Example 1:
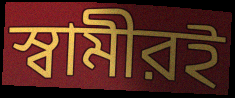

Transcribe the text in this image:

স্বামীরই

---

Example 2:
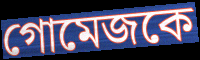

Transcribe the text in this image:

গোমেজকে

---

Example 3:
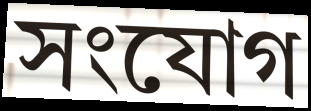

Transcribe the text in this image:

সংযোগ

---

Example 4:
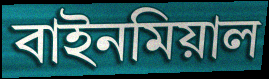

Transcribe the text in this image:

বাইনমিয়াল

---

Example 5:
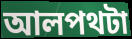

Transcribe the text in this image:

আলপথটা